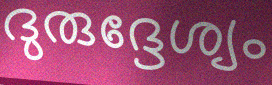
ദുരുദ്ദേശ്യം